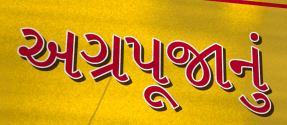
અગ્રપૂજાનું